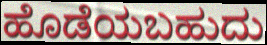
ಹೊಡೆಯಬಹುದು